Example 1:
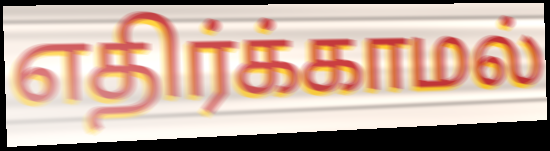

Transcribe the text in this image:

எதிர்க்காமல்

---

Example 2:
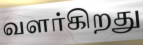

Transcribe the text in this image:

வளர்கிறது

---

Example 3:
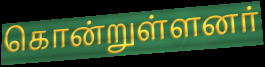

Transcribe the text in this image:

கொன்றுள்ளனர்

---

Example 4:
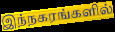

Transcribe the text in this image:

இந்நகரங்களில்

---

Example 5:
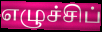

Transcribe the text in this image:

எழுச்சிப்